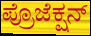
ಪ್ರೊಜೆಕ್ಷನ್